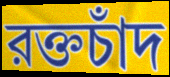
রক্তচাঁদ